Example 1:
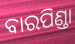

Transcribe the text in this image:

ବାରପିଣ୍ଡା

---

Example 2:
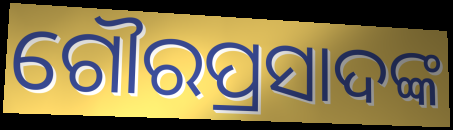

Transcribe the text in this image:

ଗୌରପ୍ରସାଦଙ୍କ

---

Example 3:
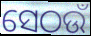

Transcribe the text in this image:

ସେଠଉଁ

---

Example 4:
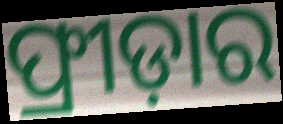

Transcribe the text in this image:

ଫ୍ରୀଡ଼ାର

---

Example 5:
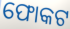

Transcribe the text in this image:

ଫୋକଟ